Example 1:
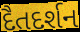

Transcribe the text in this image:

દૈતદર્શન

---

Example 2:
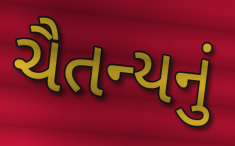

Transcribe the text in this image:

ચૈતન્યનું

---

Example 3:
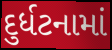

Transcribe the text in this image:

દુર્ધટનામાં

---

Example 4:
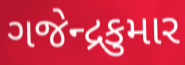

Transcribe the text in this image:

ગજેન્દ્રકુમાર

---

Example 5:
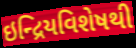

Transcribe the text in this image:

ઇન્દ્રિયવિશેષથી